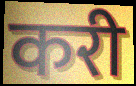
करी